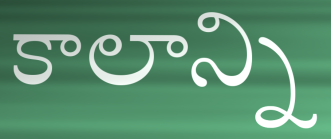
కాలాన్ని